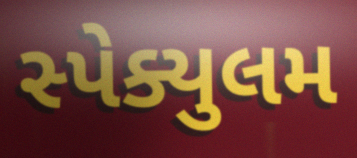
સ્પેક્યુલમ